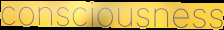
consciousness